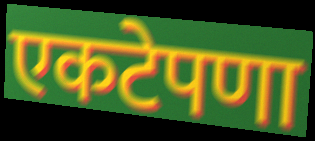
एकटेपणा